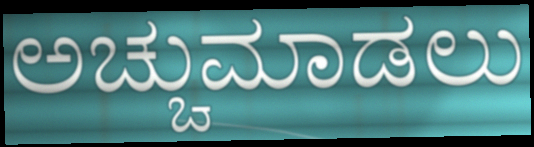
ಅಚ್ಚುಮಾಡಲು